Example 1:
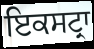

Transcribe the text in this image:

ਇਕਸਟ੍ਰਾ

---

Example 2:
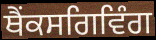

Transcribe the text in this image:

ਥੈਂਕਸਗਿਵਿੰਗ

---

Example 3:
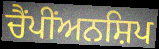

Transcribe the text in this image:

ਚੈਂਪੀਂਅਨਸ਼ਿਪ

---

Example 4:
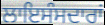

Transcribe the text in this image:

ਲਾਇਸੰਸਦਾਰਾਂ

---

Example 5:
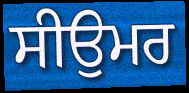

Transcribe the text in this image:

ਸੀਉਮਰ